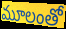
మూలంతో